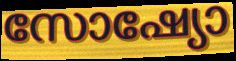
സോഷ്യോ